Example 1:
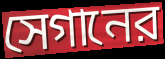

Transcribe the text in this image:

সেগানের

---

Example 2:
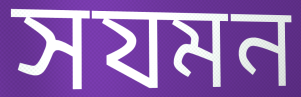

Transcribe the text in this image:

সযমন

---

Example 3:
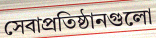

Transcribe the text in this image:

সেবাপ্রতিষ্ঠানগুলো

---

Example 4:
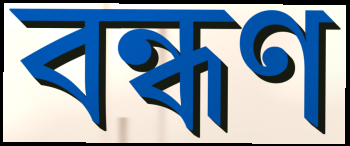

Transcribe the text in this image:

বন্ধণ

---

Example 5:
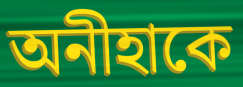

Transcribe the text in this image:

অনীহাকে